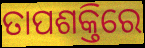
ତାପଶକ୍ତିରେ